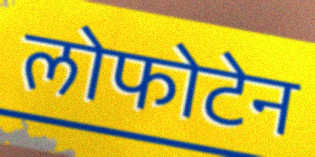
लोफोटेन